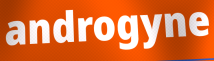
androgyne